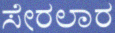
ಸೇರಲಾರ